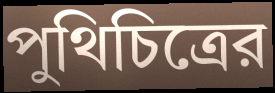
পুথিচিত্রের